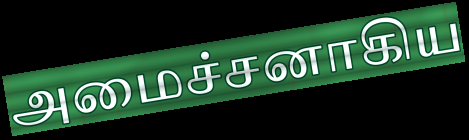
அமைச்சனாகிய